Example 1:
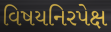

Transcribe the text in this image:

વિષયનિરપેક્ષ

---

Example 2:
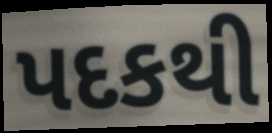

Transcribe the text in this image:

પદકથી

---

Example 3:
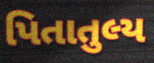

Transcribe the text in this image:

પિતાતુલ્ય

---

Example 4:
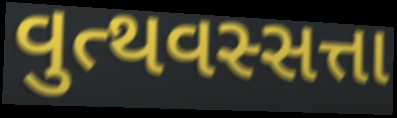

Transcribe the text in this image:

વુત્થવસ્સત્તા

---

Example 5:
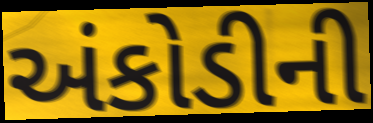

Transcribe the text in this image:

અંકોડીની